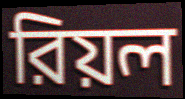
রিয়ল